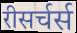
रीसर्चर्स